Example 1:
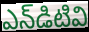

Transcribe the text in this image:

ఎన్‌డిటివి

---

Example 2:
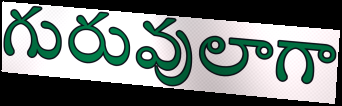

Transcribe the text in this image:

గురువులాగా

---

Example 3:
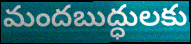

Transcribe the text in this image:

మందబుద్ధులకు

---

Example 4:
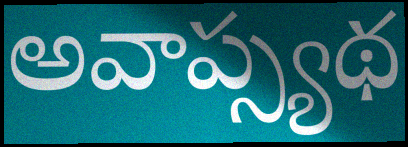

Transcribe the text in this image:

అవాప్స్యథ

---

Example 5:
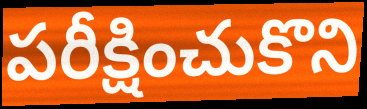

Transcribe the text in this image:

పరీక్షించుకొని